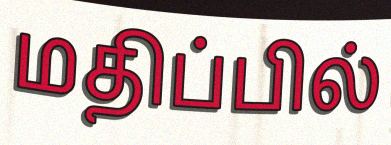
மதிப்பில்